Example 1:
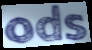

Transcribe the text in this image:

ods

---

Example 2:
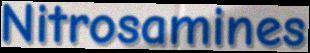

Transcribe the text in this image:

Nitrosamines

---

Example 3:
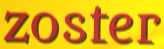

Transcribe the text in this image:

zoster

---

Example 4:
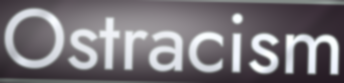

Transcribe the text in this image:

Ostracism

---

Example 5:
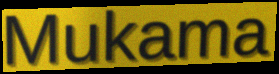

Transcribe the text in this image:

Mukama